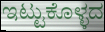
ಇಟ್ಟುಕೊಳ್ಳದ